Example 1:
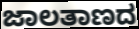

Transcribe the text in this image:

ಜಾಲತಾಣದ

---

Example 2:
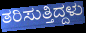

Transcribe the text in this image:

ತರಿಸುತ್ತಿದ್ದಳು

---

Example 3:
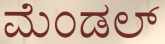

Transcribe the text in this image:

ಮೆಂಡಲ್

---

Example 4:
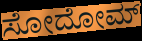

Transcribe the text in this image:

ಸೋದೋಮ್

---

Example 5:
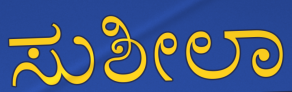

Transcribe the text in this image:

ಸುಶೀಲಾ